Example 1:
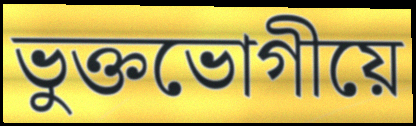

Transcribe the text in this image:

ভুক্তভোগীয়ে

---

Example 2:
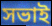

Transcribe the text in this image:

সভাই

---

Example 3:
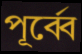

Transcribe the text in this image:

পূৰ্ব্বে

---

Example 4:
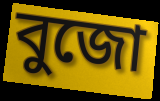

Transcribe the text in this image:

বুজো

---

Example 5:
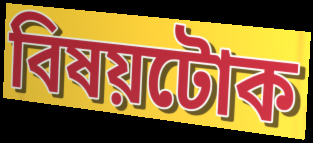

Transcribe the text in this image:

বিষয়টোক